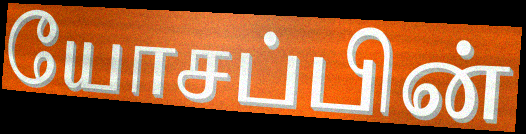
யோசப்பின்